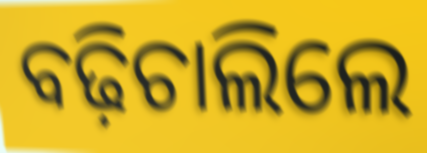
ବଢ଼ିଚାଲିଲେ